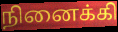
நினைக்கி